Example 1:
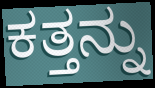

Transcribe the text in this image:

ಕತ್ತನ್ನು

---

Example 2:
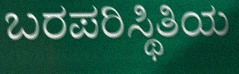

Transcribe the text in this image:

ಬರಪರಿಸ್ಥಿತಿಯ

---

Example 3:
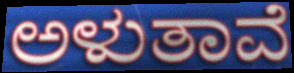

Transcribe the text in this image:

ಅಳುತಾವೆ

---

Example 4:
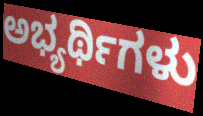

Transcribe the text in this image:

ಅಭ್ಯರ್ಥಿಗಳು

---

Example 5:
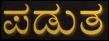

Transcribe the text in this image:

ಪಡುತ